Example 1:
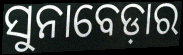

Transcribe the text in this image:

ସୁନାବେଡ଼ାର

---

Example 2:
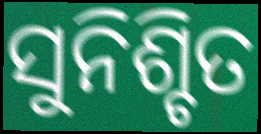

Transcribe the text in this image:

ସୁନିଶ୍ଚିତ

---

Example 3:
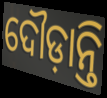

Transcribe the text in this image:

ଦୌଡ଼ାନ୍ତି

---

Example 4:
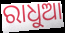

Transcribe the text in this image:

ରାଧୁଆ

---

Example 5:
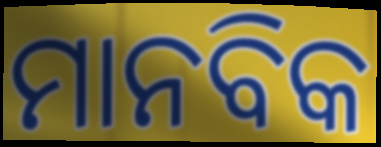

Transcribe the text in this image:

ମାନବିକ